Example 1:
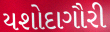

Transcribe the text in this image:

યશોદાગૌરી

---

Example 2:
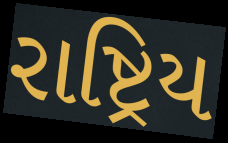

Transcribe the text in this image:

રાષ્ટ્રિય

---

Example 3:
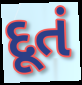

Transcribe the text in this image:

દૂતં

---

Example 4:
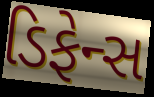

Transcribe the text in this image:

ડિફેન્સ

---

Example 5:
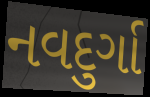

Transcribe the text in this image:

નવદુર્ગા